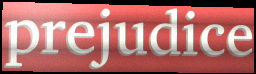
prejudice